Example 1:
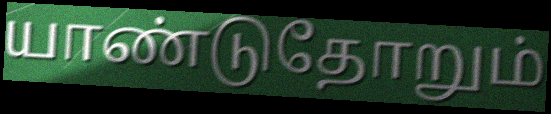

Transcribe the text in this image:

யாண்டுதோறும்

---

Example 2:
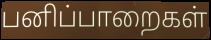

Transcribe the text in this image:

பனிப்பாறைகள்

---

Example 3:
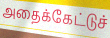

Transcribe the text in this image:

அதைக்கேட்டுச்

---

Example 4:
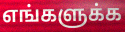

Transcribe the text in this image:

எங்களுக்க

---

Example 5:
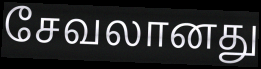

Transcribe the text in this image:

சேவலானது